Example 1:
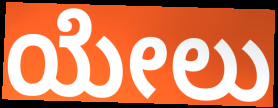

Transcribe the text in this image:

ಯೇಲು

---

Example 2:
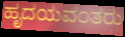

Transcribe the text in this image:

ಹೃದಯವಂತರು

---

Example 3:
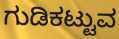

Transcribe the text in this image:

ಗುಡಿಕಟ್ಟುವ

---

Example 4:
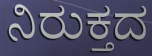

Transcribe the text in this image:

ನಿರುಕ್ತದ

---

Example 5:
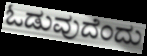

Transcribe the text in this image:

ಓಡುವುದೆಂದು